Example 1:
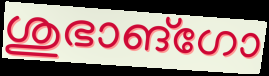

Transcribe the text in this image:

ശുഭാങ്ഗോ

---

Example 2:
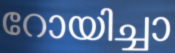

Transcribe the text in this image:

റോയിച്ചാ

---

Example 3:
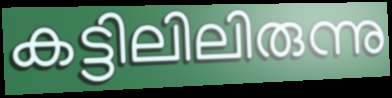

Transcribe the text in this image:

കട്ടിലിലിരുന്നു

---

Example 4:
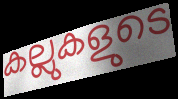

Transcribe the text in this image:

കല്ലുകളുടെ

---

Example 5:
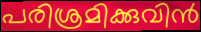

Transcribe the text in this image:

പരിശ്രമിക്കുവിൻ